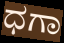
ಧಗಾ